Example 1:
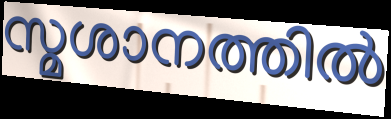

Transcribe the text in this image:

സ്മശാനത്തിൽ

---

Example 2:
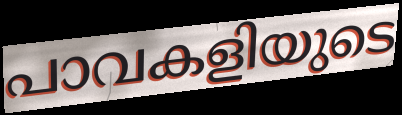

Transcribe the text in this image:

പാവകളിയുടെ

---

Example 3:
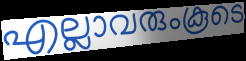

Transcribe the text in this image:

എല്ലാവരുംകൂടെ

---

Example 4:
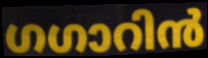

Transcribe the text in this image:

ഗഗാറിൻ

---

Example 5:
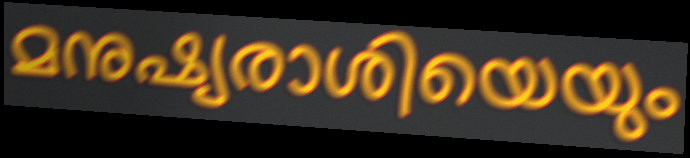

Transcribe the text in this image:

മനുഷ്യരാശിയെയും